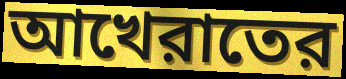
আখেরাতের